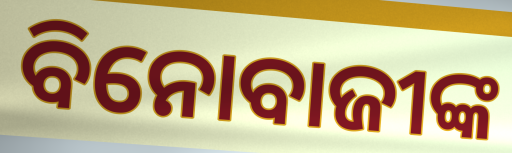
ବିନୋବାଜୀଙ୍କ